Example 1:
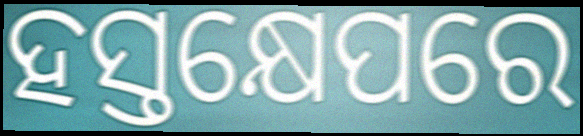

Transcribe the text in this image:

ହସ୍ତକ୍ଷେପରେ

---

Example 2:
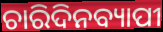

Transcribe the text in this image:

ଚାରିଦିନବ୍ୟାପୀ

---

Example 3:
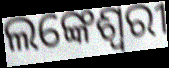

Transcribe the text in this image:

ଲଙ୍କେଶ୍ଵରୀ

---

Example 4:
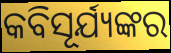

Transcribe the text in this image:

କବିସୂର୍ଯ୍ୟଙ୍କର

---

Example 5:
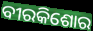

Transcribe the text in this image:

ବୀରକିଶୋର